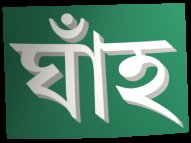
ঘাঁহ